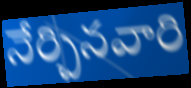
నేర్చినవారి